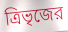
ত্রিভৃজের